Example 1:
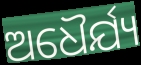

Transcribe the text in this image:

ଅଧୈର୍ଯ୍ୟ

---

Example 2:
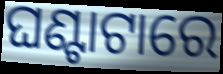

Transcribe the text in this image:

ଘଣ୍ଟାଟାରେ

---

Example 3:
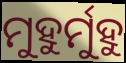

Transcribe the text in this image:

ମୁହୁର୍ମୁହୁ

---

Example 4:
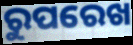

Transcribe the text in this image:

ରୁପରେଖ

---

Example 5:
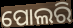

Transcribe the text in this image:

ପୋଲରି